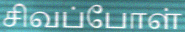
சிவப்போள்